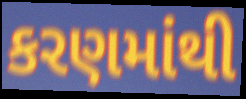
કરણમાંથી